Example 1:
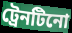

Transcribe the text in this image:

ট্রেনটিনো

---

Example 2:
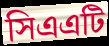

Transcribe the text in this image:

সিএএটি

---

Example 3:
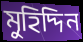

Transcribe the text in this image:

মুহিদ্দিন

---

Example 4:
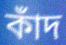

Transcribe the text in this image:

কাঁদ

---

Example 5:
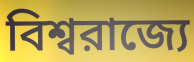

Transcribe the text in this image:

বিশ্বরাজ্যে